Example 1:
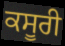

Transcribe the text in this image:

ਕਸੂਰੀ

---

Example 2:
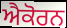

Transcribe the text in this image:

ਐਕੋਰਨ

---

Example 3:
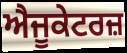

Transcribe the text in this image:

ਐਜੂਕੇਟਰਜ਼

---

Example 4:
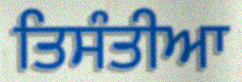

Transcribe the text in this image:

ਤਿਸੰਤੀਆ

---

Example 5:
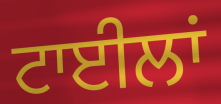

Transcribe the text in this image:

ਟਾਈਲਾਂ